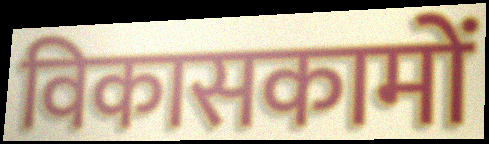
विकासकामों